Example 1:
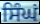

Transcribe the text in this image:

ਸਿੰਘਂ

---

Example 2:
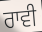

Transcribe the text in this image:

ਰਾਵੀ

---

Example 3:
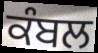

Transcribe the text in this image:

ਕੰਬਲ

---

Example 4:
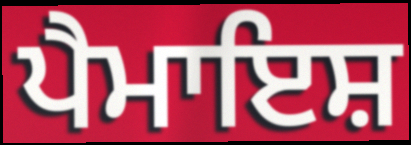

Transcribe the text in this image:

ਪੈਮਾਇਸ਼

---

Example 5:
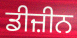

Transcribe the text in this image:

ਡੀਜ਼ੀਨ